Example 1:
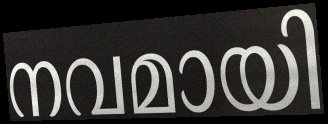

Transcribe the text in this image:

നവമായി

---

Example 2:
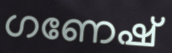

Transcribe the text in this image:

ഗണേഷ്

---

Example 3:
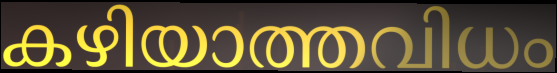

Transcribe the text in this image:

കഴിയാത്തവിധം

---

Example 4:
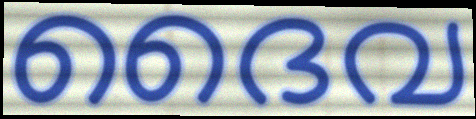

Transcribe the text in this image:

ദൈവ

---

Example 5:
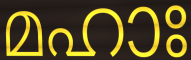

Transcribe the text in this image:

മഹാഃ